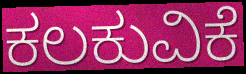
ಕಲಕುವಿಕೆ